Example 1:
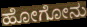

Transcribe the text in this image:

ಹೋಗೋನು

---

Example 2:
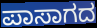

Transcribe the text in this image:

ಪಾಸಾಗದ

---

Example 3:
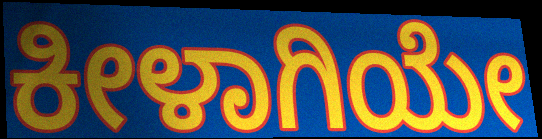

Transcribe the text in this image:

ಕೀಳಾಗಿಯೇ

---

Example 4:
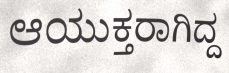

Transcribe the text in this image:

ಆಯುಕ್ತರಾಗಿದ್ದ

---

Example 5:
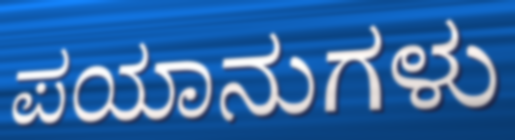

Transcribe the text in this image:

ಪಯಾನುಗಳು